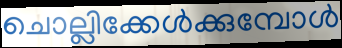
ചൊല്ലിക്കേൾക്കുമ്പോൾ